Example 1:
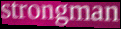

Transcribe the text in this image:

strongman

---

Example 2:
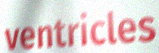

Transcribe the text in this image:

ventricles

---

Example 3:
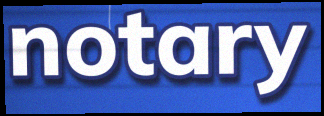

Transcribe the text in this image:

notary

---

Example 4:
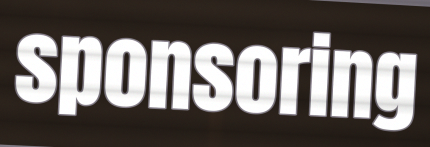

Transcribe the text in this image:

sponsoring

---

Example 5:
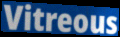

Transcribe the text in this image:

Vitreous